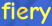
fiery